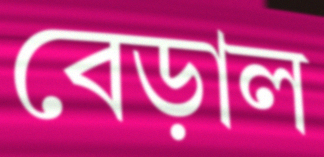
বেড়াল